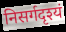
निसर्गदृश्यं